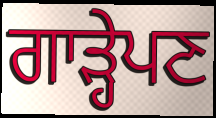
ਗਾੜ੍ਹੇਪਣ